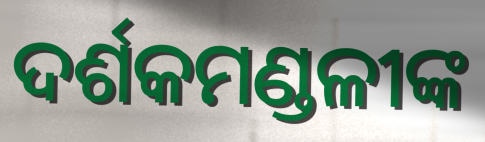
ଦର୍ଶକମଣ୍ଡଳୀଙ୍କ